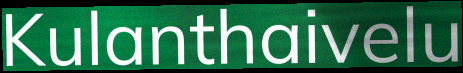
Kulanthaivelu